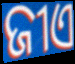
ଜୀଏ